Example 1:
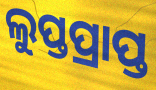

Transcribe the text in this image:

ଲୁପ୍ତପ୍ରାପ୍ତ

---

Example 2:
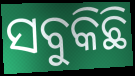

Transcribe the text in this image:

ସବୁକିଛି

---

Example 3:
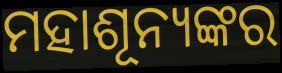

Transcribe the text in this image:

ମହାଶୂନ୍ୟଙ୍କର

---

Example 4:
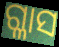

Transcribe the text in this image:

ଗ୍ଳାସ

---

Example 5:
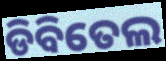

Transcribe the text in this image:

ଡିବିତେଲ